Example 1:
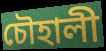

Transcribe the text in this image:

চৌহালী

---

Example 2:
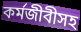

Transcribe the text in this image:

কর্মজীবীসহ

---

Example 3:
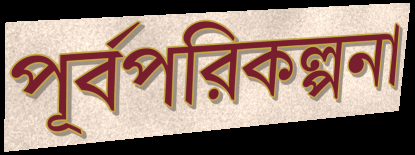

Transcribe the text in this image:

পূর্বপরিকল্পনা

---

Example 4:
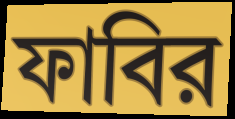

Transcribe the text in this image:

ফাবির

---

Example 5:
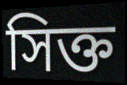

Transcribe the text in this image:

সিক্ত